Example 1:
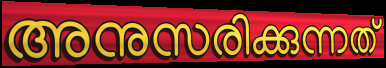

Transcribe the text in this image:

അനുസരിക്കുന്നത്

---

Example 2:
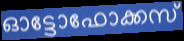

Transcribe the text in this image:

ഓട്ടോഫോക്കസ്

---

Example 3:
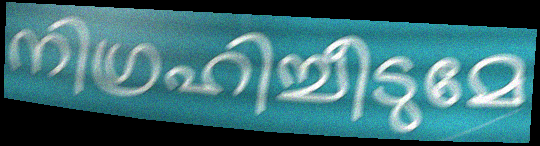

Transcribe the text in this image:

നിഗ്രഹിച്ചീടുമേ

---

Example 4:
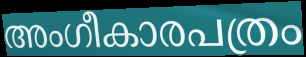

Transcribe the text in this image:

അംഗീകാരപത്രം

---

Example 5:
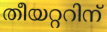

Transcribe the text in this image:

തീയറ്ററിന്